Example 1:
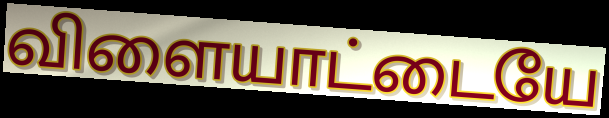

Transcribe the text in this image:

விளையாட்டையே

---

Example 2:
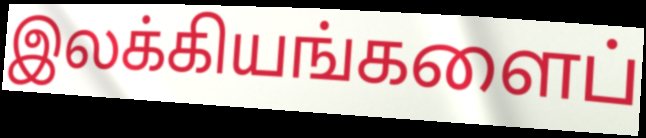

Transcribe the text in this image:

இலக்கியங்களைப்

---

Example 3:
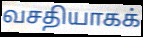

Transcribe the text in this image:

வசதியாகக்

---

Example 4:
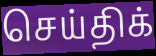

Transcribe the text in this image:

செய்திக்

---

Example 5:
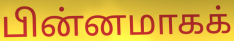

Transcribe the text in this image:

பின்னமாகக்